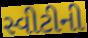
સ્વીટીની